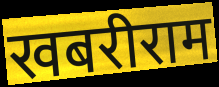
खबरीराम